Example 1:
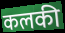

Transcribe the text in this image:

कलकी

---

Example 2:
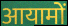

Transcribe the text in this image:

आयामों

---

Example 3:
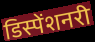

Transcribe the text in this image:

डिस्पेंशनरी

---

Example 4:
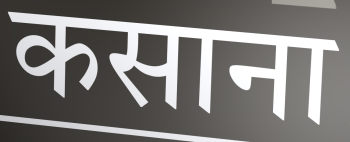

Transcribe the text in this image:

कसाना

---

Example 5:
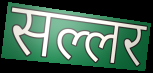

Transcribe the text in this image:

सल्लर